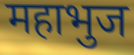
महाभुज